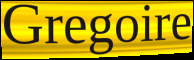
Gregoire